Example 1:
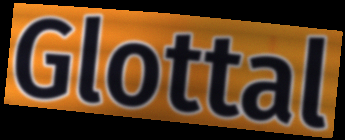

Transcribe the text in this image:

Glottal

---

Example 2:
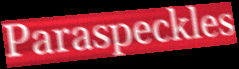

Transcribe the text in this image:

Paraspeckles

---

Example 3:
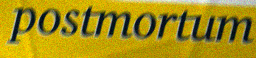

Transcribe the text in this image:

postmortum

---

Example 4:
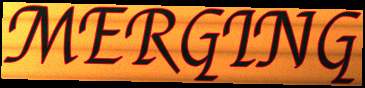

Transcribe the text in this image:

MERGING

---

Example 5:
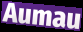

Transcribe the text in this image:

Aumau